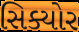
સિક્યોર